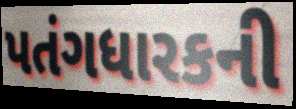
પતંગધારકની